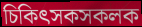
চিকিৎসকসকলক